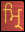
ਮ੍ਰਿ